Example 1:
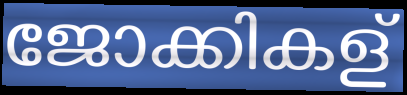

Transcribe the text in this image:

ജോക്കികള്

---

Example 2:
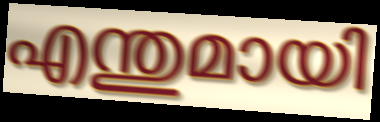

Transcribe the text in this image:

എന്തുമായി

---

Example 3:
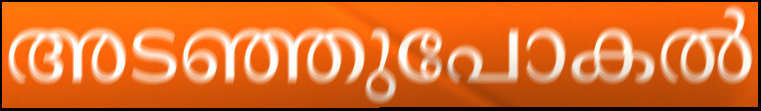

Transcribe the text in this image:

അടഞ്ഞുപോകൽ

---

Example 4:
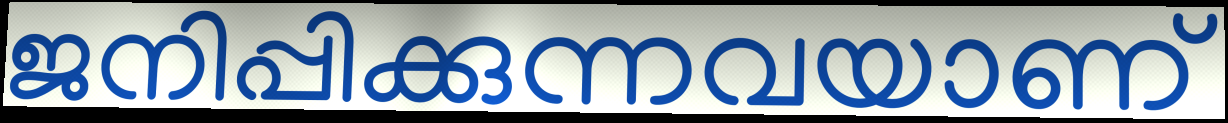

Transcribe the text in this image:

ജനിപ്പിക്കുന്നവയാണ്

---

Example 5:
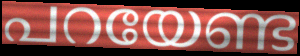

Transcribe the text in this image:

പറയേണ്ട